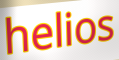
helios